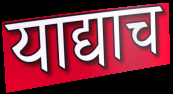
याद्याच